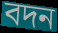
বদন